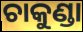
ଚାକୁଣ୍ଡା